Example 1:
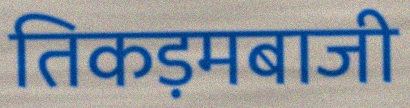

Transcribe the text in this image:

तिकड़मबाजी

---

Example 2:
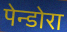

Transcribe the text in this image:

पेन्डोरा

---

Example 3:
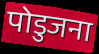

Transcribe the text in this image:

पोडुजना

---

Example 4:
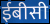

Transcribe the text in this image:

ईबीसी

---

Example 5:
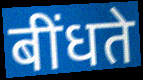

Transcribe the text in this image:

बींधते